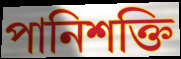
পানিশক্তি